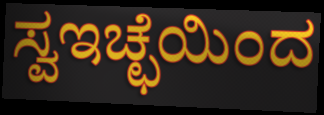
ಸ್ವಇಚ್ಛೆಯಿಂದ